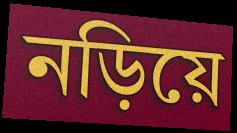
নড়িয়ে